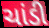
ચાંડી